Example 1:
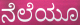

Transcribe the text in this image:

ನೆಲೆಯೂ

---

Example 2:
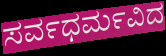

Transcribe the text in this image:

ಸರ್ವಧರ್ಮವಿದ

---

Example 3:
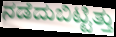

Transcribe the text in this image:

ನಡೆದುಬಿಟ್ಟಿತ್ತು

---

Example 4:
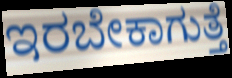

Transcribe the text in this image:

ಇರಬೇಕಾಗುತ್ತೆ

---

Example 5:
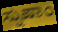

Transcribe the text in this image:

ಸ್ನುಷಾಂ